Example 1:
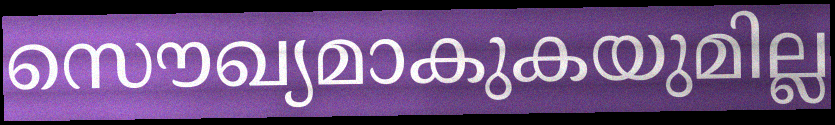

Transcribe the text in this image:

സൌഖ്യമാകുകയുമില്ല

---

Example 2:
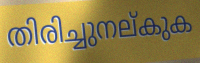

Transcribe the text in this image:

തിരിച്ചുനല്കുക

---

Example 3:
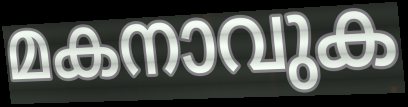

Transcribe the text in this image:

മകനാവുക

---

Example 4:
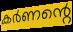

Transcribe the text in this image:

കർണന്റെ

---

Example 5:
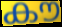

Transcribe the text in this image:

കൗ